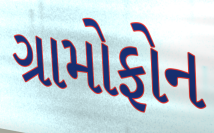
ગ્રામોફોન